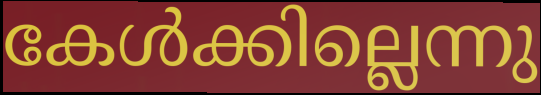
കേൾക്കില്ലെന്നു